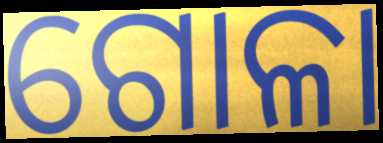
ଗୋଳା